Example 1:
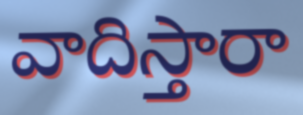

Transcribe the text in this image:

వాదిస్తారా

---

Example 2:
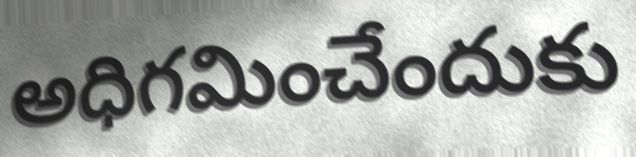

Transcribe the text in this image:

అధిగమించేందుకు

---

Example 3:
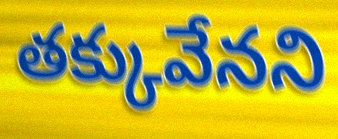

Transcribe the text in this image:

తక్కువేనని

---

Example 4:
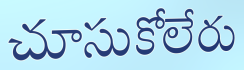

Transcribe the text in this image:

చూసుకోలేరు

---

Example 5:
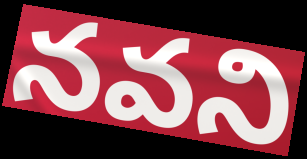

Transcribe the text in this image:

నవని